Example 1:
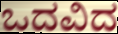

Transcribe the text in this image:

ಒದವಿದ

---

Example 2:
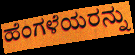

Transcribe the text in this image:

ಹೆಂಗಳೆಯರನ್ನು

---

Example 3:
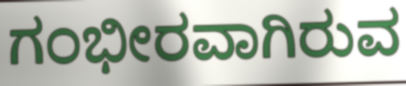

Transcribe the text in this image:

ಗಂಭೀರವಾಗಿರುವ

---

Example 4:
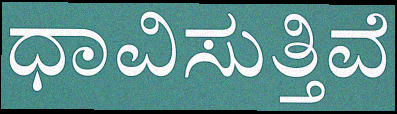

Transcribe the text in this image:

ಧಾವಿಸುತ್ತಿವೆ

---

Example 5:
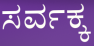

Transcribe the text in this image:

ಸರ್ವಕ್ಕ